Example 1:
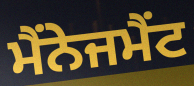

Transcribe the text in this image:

ਮੈਂਨੇਜਮੈਂਟ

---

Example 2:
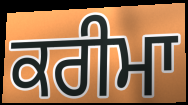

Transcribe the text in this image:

ਕਰੀਮਾ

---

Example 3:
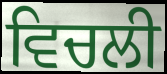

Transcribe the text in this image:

ਵਿਚਲੀ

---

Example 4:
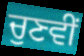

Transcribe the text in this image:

ਚੁਣਵੀਂ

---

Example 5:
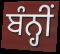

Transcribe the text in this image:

ਬੰਨ੍ਹੀਂ